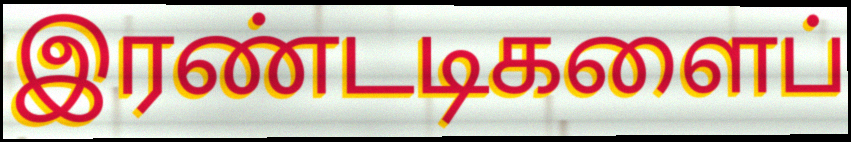
இரண்டடிகளைப்